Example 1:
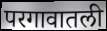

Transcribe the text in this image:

परगावातली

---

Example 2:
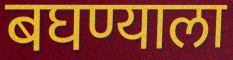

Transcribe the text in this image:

बघण्याला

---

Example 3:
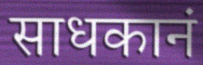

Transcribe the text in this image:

साधकानं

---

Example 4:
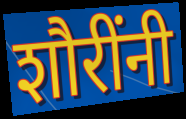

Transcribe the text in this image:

शौरींनी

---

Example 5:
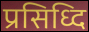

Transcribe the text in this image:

प्रसिध्दि